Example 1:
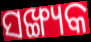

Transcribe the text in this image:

ସଙ୍ଖ୍ୟକ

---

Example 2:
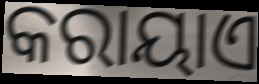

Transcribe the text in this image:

କରାୟାଏ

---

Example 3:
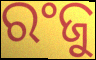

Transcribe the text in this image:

ରଂଜୁ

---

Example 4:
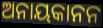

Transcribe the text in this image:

ଅନାୟକାନନ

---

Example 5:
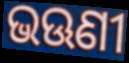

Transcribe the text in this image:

ଭଊଣୀ